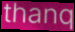
thanq